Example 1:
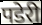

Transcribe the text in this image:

पडेरी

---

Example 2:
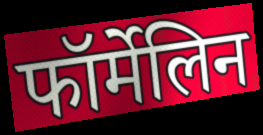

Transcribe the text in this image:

फॉर्मेलिन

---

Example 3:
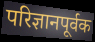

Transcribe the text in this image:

परिज्ञानपूर्वक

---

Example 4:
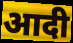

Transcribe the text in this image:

आदी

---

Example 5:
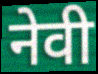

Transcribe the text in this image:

नेवी